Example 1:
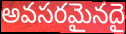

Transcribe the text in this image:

అవసరమైనదై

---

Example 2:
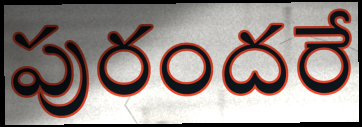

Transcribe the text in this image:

పురందరే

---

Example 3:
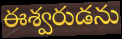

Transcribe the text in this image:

ఈశ్వరుడను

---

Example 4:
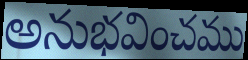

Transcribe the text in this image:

అనుభవించము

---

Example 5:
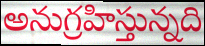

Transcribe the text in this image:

అనుగ్రహిస్తున్నది